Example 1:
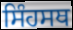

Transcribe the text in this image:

ਸਿੰਹਸਥ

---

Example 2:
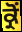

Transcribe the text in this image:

ਕ੍ਰੋਂ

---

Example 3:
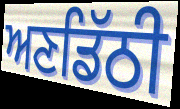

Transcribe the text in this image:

ਅਣਡਿੱਠੀ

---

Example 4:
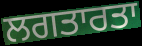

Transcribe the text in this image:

ਲਗਤਾਰਤਾ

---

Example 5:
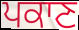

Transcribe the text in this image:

ਪਕਾਣ